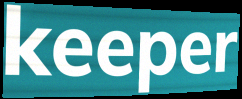
keeper